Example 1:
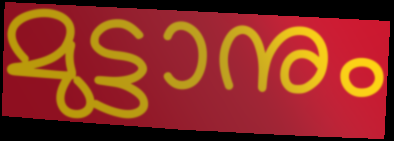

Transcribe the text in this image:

മുട്ടാനും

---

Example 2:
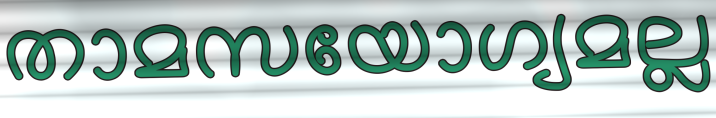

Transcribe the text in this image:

താമസയോഗ്യമല്ല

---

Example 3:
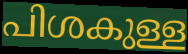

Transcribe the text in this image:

പിശകുള്ള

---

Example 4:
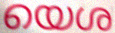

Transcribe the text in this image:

യെശ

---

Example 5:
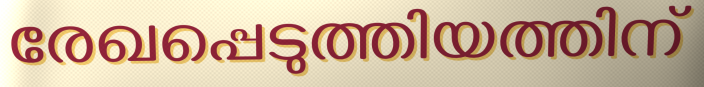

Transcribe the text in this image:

രേഖപ്പെടുത്തിയത്തിന്